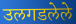
उलगडलेले